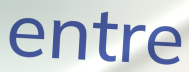
entre